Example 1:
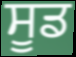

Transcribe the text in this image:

ਸੂਡ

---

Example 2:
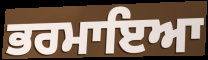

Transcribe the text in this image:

ਭਰਮਾਇਆ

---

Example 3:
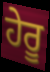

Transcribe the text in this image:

ਹੇਰੂ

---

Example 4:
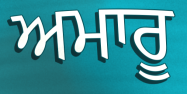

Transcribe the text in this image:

ਅਮਾਰੂ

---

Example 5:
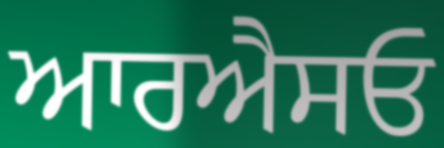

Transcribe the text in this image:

ਆਰਐਸਓ